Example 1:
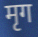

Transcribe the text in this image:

मृग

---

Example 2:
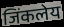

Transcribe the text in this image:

जिंकलेय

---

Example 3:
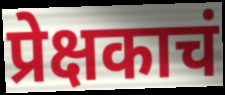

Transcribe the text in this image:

प्रेक्षकाचं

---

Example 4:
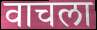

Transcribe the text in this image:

वाचला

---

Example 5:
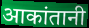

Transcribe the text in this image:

आकांतानी